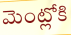
మెంట్లోకి